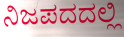
ನಿಜಪದದಲ್ಲಿ